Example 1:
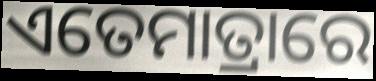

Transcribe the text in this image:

ଏତେମାତ୍ରାରେ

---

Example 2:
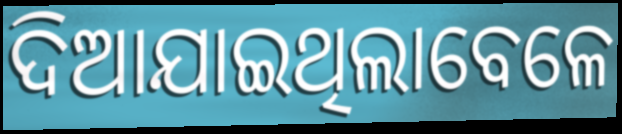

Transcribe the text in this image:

ଦିଆଯାଇଥିଲାବେଳେ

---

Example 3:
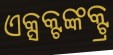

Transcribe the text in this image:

ଏକ୍ସକ୍ଟଙ୍କକ୍ଟ୍ର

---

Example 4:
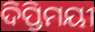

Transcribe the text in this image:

ଦିପ୍ତିମୟୀ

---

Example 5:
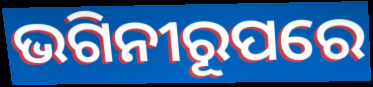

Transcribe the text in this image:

ଭଗିନୀରୂପରେ